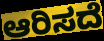
ಆರಿಸದೆ